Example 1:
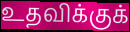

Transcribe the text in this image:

உதவிக்குக்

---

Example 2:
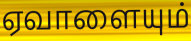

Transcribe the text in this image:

ஏவாளையும்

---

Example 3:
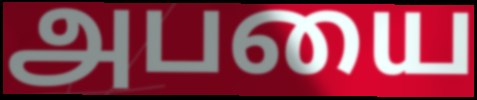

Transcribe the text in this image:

அபயை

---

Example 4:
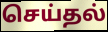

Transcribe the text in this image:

செய்தல்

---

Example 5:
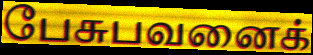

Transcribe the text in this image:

பேசுபவனைக்